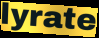
lyrate